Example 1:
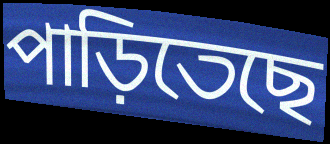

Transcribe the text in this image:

পাড়িতেছে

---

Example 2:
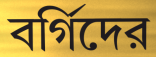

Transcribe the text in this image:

বর্গিদের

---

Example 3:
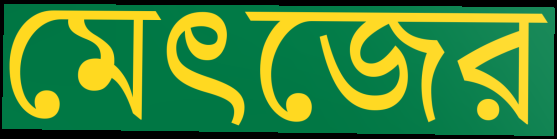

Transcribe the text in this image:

মেৎজের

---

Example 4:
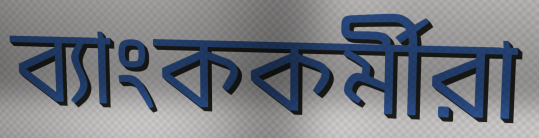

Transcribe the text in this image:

ব্যাংককর্মীরা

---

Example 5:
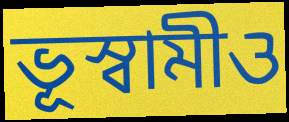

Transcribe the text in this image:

ভূস্বামীও